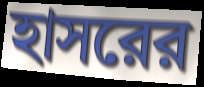
হাসরের